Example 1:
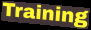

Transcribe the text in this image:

Training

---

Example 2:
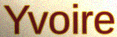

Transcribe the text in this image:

Yvoire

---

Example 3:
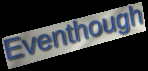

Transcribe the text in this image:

Eventhough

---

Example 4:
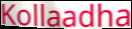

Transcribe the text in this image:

Kollaadha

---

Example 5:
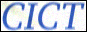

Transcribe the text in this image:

CICT